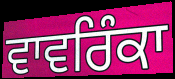
ਵਾਵਰਿੰਕਾ